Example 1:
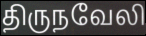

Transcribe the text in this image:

திருநவேலி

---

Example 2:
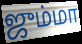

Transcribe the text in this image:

ஜும்மா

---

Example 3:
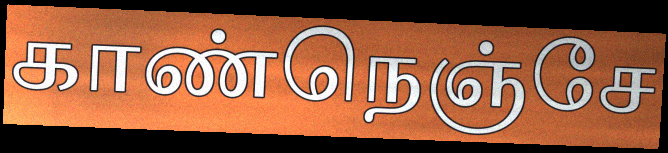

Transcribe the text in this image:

காண்நெஞ்சே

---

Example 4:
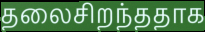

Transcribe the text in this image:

தலைசிறந்ததாக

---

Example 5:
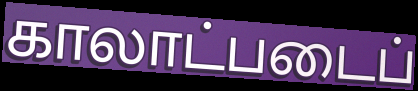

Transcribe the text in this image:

காலாட்படைப்